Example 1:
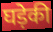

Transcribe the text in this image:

घड़ेकी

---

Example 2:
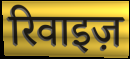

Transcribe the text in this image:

रिवाइज़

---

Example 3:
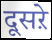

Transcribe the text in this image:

दूसऱे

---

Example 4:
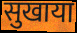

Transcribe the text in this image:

सुखाया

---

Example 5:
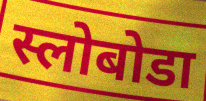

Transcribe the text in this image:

स्लोबोडा